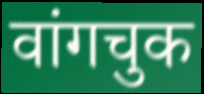
वांगचुक